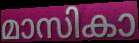
മാസികാ